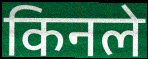
किनले